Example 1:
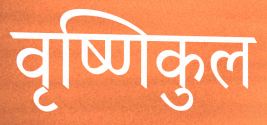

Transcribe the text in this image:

वृष्णिकुल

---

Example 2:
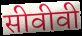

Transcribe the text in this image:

सीवीवी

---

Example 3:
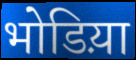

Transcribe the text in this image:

भोडिय़ा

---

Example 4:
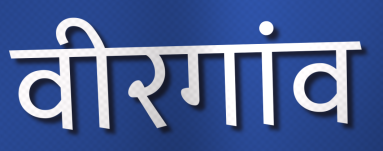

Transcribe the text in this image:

वीरगांव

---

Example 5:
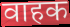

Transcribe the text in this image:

वाहक